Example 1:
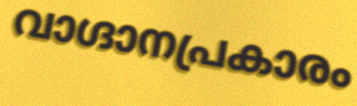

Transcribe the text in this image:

വാഗ്ദാനപ്രകാരം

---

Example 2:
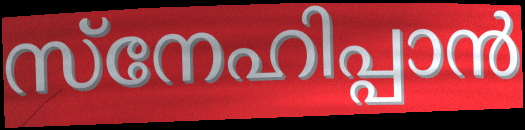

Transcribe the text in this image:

സ്നേഹിപ്പാൻ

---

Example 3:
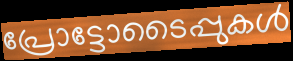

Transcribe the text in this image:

പ്രോട്ടോടൈപ്പുകൾ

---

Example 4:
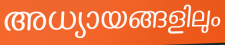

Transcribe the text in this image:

അധ്യായങ്ങളിലും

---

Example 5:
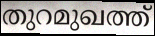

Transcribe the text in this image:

തുറമുഖത്ത്